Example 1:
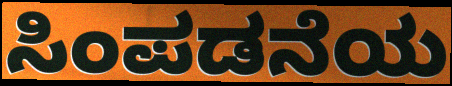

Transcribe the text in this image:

ಸಿಂಪಡನೆಯ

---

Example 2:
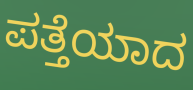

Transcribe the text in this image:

ಪತ್ತೆಯಾದ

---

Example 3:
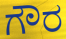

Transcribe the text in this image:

ಗೌರ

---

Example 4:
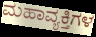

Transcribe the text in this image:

ಮಹಾವ್ಯಕ್ತಿಗಳ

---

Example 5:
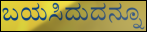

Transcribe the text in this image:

ಬಯಸಿದುದನ್ನೂ